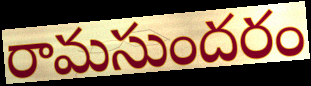
రామసుందరం